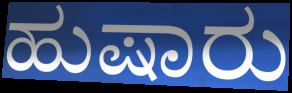
ಹುಷಾರು